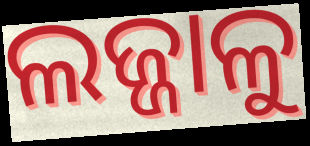
ଲଜ୍ଜାଳୁ